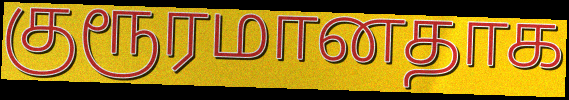
குரூரமானதாக